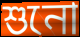
শুনো